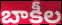
బాకీల